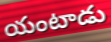
యంటాడు